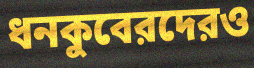
ধনকুবেরদেরও